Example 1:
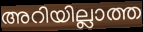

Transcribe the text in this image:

അറിയില്ലാത്ത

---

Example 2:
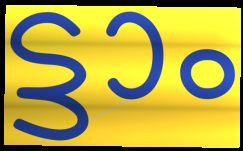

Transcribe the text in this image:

ട്ടാം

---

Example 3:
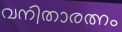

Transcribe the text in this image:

വനിതാരത്നം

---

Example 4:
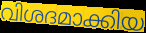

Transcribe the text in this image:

വിശദമാക്കിയ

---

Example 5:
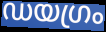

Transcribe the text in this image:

ഡയഗ്രം